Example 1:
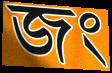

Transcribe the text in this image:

জং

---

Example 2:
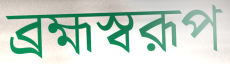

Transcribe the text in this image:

ব্রহ্মস্বরূপ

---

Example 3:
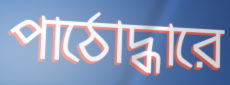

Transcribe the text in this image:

পাঠোদ্ধারে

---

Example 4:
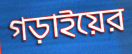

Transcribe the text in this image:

গড়াইয়ের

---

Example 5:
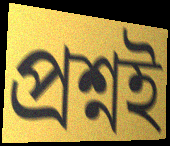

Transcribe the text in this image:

প্রশ্নই